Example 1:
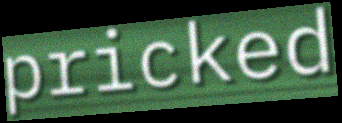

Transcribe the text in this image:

pricked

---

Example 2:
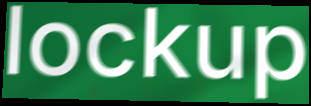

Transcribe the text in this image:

lockup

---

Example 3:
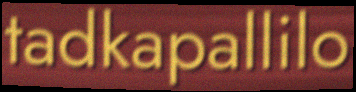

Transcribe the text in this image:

tadkapallilo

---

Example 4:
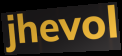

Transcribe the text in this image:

jhevol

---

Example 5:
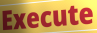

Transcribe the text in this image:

Execute